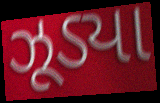
ઝૂડ્યા